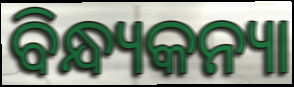
ବିନ୍ଧ୍ୟକନ୍ୟା